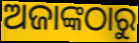
ଅଜାଙ୍କଠାରୁ